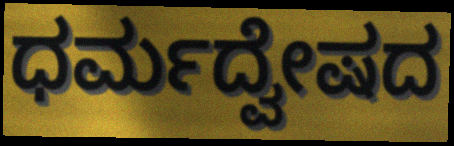
ಧರ್ಮದ್ವೇಷದ